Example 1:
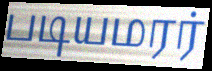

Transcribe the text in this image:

படியமரர்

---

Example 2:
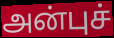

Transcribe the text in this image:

அன்புச்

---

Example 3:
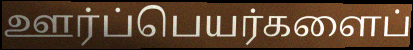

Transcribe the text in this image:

ஊர்ப்பெயர்களைப்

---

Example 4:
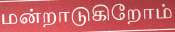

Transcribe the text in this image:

மன்றாடுகிறோம்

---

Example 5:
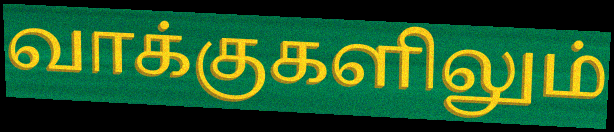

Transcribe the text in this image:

வாக்குகளிலும்